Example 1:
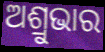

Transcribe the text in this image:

ଅଶ୍ରୁଭାର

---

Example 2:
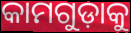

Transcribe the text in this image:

କାମଗୁଡ଼ାକୁ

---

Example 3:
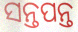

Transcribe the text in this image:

ସନ୍ତପନ୍ତ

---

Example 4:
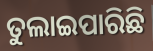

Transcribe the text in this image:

ତୁଲାଇପାରିଛି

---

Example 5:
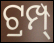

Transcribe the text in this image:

ଟ୍ରମ୍ପ୍